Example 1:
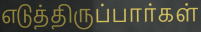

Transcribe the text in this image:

எடுத்திருப்பார்கள்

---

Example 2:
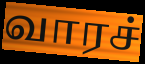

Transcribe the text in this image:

வாரச்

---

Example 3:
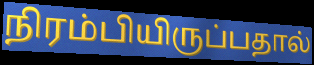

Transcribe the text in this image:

நிரம்பியிருப்பதால்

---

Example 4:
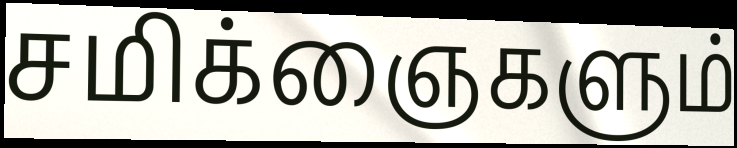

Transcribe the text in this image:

சமிக்ஞைகளும்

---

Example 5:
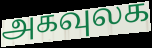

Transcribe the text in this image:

அகவுலக